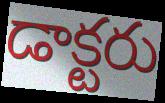
డాక్టరు